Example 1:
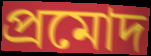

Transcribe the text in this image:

প্রমোদ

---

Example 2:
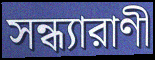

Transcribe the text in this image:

সন্ধ্যারাণী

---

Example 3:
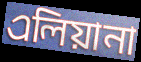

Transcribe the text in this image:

এলিয়ানা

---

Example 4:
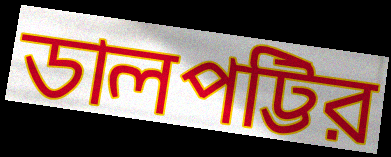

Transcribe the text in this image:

ডালপট্টির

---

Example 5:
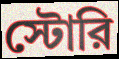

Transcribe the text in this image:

স্টোরি